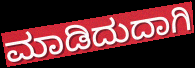
ಮಾಡಿದುದಾಗಿ